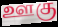
ஊகு